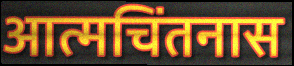
आत्मचिंतनास